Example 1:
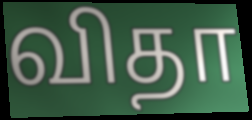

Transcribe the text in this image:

விதா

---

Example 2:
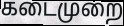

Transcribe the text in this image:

கடைமுறை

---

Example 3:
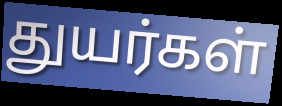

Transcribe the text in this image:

துயர்கள்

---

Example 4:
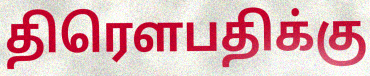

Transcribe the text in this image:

திரௌபதிக்கு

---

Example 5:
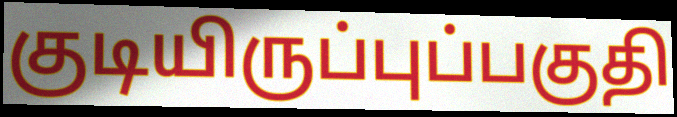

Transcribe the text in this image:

குடியிருப்புப்பகுதி